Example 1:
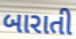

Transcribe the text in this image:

બારાતી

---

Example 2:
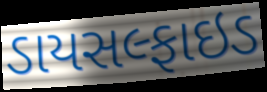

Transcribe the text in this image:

ડાયસલ્ફાઇડ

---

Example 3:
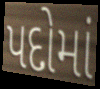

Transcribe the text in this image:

પદોમાં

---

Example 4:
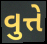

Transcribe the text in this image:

વુત્તે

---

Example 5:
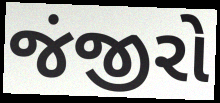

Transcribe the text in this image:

જંજીરો